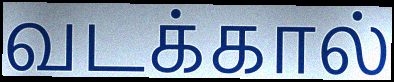
வடக்கால்